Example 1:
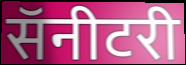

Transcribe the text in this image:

सॅनीटरी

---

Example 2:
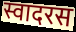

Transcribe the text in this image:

स्वादरस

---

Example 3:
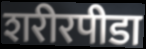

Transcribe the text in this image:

शरीरपीडा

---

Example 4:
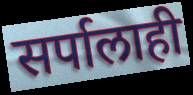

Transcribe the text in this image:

सर्पालाही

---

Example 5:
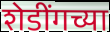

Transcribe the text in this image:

शेडींगच्या